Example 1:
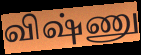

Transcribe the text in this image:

விஷ்ணு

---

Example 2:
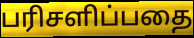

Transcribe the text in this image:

பரிசளிப்பதை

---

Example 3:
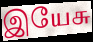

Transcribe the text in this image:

இயேசு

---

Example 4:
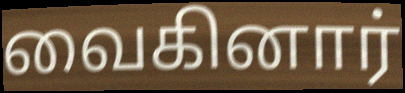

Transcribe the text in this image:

வைகினார்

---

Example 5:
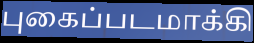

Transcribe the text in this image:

புகைப்படமாக்கி